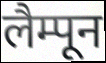
लैम्पून